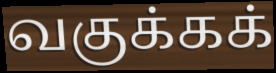
வகுக்கக்